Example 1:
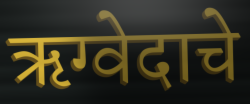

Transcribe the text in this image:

ऋग्वेदाचे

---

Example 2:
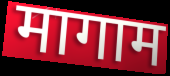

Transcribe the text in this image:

मागाम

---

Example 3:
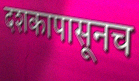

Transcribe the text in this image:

दशकापासूनच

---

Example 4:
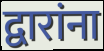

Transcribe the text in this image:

द्वारांना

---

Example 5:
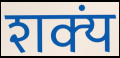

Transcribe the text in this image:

शक्यं